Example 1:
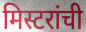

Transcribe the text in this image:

मिस्टरांची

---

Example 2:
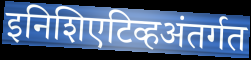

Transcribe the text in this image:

इनिशिएटिव्हअंतर्गत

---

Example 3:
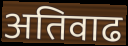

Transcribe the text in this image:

अतिवाढ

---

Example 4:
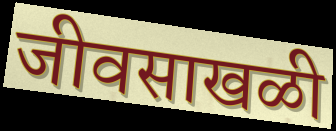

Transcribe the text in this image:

जीवसाखळी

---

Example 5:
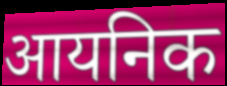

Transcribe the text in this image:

आयनिक